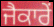
ਜੈਕਾਰੇਂ